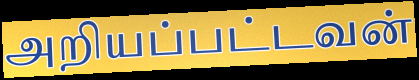
அறியப்பட்டவன்